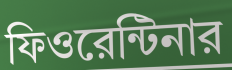
ফিওরেন্টিনার